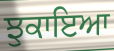
ਝੁਕਾਇਆ